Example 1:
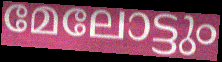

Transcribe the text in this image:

മേലോട്ടും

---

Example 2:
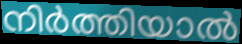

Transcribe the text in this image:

നിർത്തിയാൽ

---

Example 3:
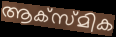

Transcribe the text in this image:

ആക്സ്മിക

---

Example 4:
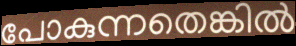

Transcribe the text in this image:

പോകുന്നതെങ്കിൽ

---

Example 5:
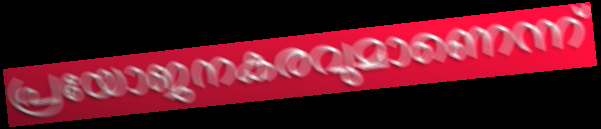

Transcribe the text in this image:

പ്രയോജനകരവുമാണെന്ന്